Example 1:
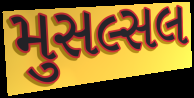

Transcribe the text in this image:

મુસલ્સલ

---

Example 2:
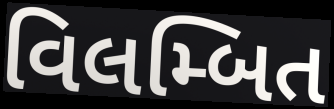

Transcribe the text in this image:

વિલમ્બિત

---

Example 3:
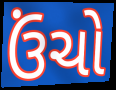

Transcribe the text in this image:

ઉંચો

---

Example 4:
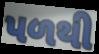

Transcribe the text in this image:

પળથી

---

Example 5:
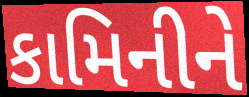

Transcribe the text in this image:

કામિનીને